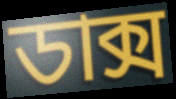
ডাক্স